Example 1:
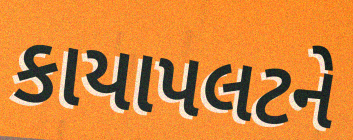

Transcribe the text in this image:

કાયાપલટને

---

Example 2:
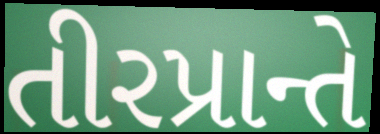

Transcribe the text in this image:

તીરપ્રાન્તે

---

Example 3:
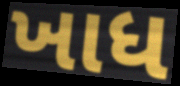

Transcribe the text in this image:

ખાધ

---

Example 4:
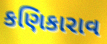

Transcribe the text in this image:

કણિકારાવ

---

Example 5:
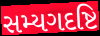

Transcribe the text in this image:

સમ્યગદષ્ટિ